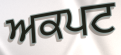
ਅਕਪਟ